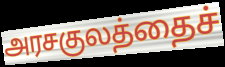
அரசகுலத்தைச்